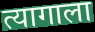
त्यागाला